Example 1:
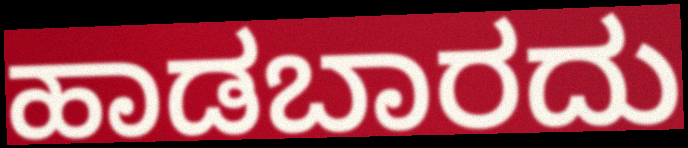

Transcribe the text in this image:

ಹಾಡಬಾರದು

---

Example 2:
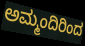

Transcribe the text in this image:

ಅಮ್ಮಂದಿರಿಂದ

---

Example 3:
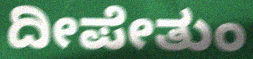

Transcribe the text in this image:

ದೀಪೇತುಂ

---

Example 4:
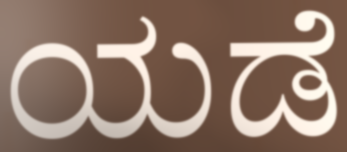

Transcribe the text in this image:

ಯಡೆ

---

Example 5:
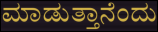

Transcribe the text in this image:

ಮಾಡುತ್ತಾನೆಂದು